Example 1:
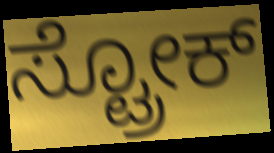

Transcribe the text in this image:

ಸ್ಟ್ರೋಕ್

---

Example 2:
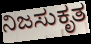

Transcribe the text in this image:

ನಿಜಸುಕೃತ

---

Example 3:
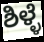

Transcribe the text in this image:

ಶಿಳ್ಳೆ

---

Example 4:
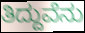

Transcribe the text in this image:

ತಿದ್ದುವೆನು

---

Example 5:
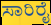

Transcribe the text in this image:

ಸಾರಿರೈ